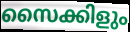
സൈക്കിളും